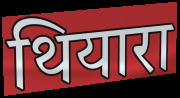
थियारा